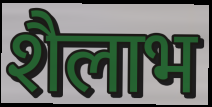
शैलाभ